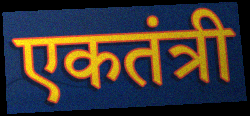
एकतंत्री